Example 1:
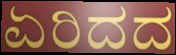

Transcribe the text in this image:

ಏರಿದದ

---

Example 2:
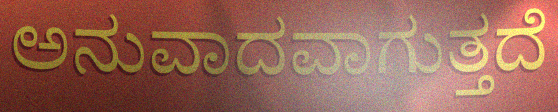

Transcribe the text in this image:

ಅನುವಾದವಾಗುತ್ತದೆ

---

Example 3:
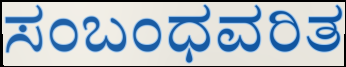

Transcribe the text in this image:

ಸಂಬಂಧವರಿತ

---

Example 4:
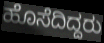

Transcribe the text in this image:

ಹೊಸೆದಿದ್ದರು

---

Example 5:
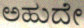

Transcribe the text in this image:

ಅಹುದೇ